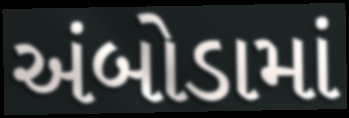
અંબોડામાં